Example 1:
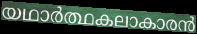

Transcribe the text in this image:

യഥാർത്ഥകലാകാരൻ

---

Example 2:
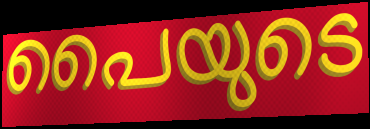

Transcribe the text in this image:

പൈയുടെ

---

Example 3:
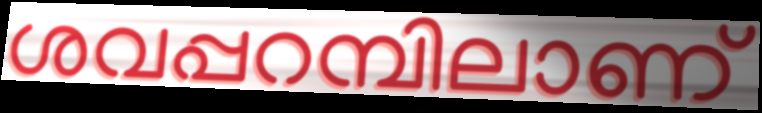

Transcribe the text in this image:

ശവപ്പറമ്പിലാണ്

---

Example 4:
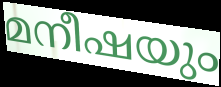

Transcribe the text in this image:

മനീഷയും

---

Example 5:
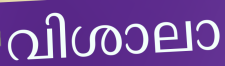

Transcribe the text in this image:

വിശാലാ